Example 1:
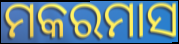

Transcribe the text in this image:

ମକରମାସ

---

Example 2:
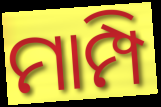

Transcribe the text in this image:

ମାମ୍ପି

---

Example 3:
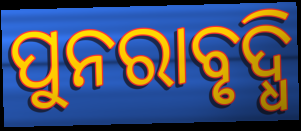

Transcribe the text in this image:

ପୁନରାବୃଦ୍ଧି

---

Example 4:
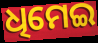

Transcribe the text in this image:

ଧିମେଇ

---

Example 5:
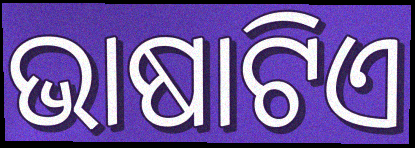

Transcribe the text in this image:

ଭାଷାଟିଏ